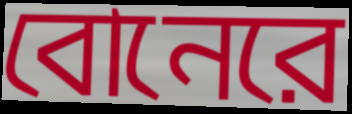
বোনেরে